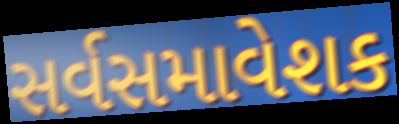
સર્વસમાવેશક